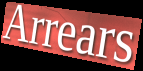
Arrears